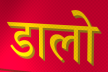
डालो